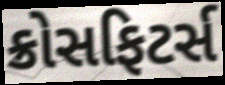
ક્રોસફિટર્સ